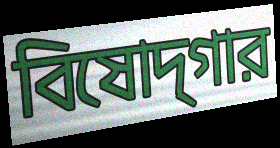
বিষোদ্‌গার